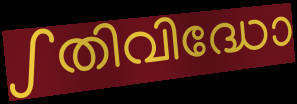
ഽതിവിദ്ധോ